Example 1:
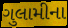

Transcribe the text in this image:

ગુલામીના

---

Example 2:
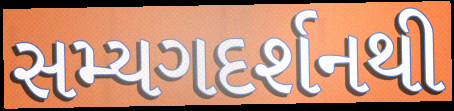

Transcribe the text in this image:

સમ્યગદર્શનથી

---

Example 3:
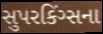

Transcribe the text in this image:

સુપરકિંગ્સના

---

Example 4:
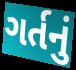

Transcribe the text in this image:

ગર્તનું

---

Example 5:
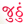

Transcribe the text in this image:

જુઠું